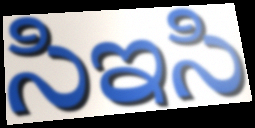
సిఇసి